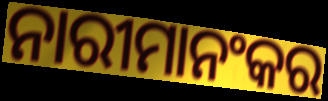
ନାରୀମାନଂକର